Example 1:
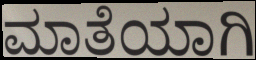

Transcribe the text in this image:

ಮಾತೆಯಾಗಿ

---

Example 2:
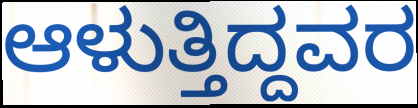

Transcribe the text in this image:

ಆಳುತ್ತಿದ್ದವರ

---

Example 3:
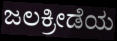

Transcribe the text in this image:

ಜಲಕ್ರೀಡೆಯ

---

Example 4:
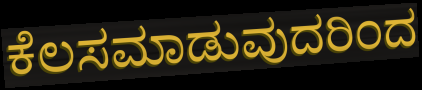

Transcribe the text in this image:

ಕೆಲಸಮಾಡುವುದರಿಂದ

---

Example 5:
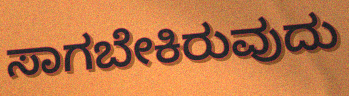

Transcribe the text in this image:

ಸಾಗಬೇಕಿರುವುದು